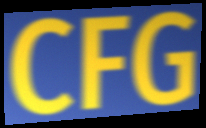
CFG